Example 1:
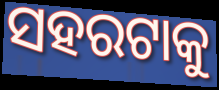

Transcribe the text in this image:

ସହରଟାକୁ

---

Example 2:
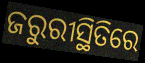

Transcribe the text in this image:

ଜରୁରୀସ୍ଥିତିରେ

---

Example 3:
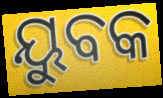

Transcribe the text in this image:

ୟୁବକ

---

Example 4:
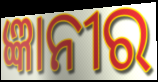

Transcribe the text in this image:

ଜ୍ଞାନୀର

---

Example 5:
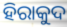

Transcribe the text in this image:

ହିରାକୁଦ